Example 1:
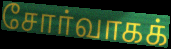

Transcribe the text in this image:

சோர்வாகக்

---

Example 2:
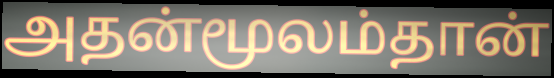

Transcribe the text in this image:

அதன்மூலம்தான்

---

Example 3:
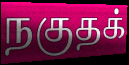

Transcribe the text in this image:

நகுதக்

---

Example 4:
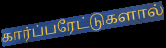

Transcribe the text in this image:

கார்ப்பரேட்டுகளால்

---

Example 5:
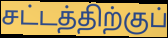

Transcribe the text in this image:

சட்டத்திற்குப்